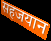
सहजयान